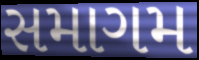
સમાગમ